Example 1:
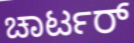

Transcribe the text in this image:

ಚಾರ್ಟರ್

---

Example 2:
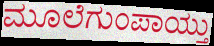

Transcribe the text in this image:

ಮೂಲೆಗುಂಪಾಯ್ತು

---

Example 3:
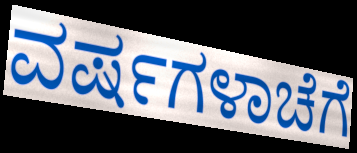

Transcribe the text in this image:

ವರ್ಷಗಳಾಚೆಗೆ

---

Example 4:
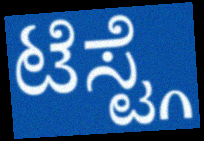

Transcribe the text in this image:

ಟೆಸ್ಟ್ಗೆ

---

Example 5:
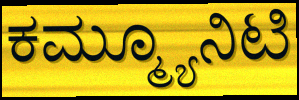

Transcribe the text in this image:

ಕಮ್ಮ್ಯೂನಿಟಿ